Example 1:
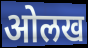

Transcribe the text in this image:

ओलख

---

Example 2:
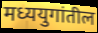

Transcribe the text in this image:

मध्ययुगांतील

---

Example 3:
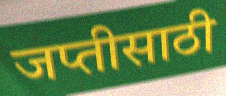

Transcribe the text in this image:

जप्तीसाठी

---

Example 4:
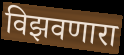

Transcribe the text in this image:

विझवणारा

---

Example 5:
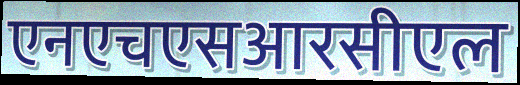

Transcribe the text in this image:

एनएचएसआरसीएल